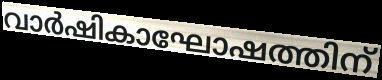
വാർഷികാഘോഷത്തിന്